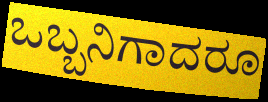
ಒಬ್ಬನಿಗಾದರೂ